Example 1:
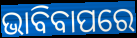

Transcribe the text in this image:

ଭାବିବାପରେ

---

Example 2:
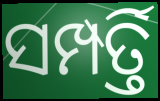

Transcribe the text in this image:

ସମ୍ପର୍ତ୍ତି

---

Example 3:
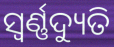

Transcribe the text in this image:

ସ୍ୱର୍ଣ୍ଣଦ୍ୟୁତି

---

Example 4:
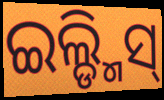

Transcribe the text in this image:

ଇଲ୍ଡ୍ମିସ୍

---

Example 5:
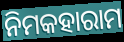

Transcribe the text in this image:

ନିମକହାରାମ